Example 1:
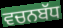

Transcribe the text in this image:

ਵਚਨਬੱਧ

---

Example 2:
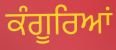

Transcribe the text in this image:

ਕੰਗੂਰਿਆਂ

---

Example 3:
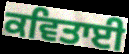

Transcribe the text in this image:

ਕਵਿਤਾਈ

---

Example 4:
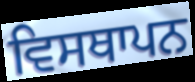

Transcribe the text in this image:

ਵਿਸਥਾਪਨ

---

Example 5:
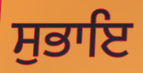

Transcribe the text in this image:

ਸੁਭਾਇ